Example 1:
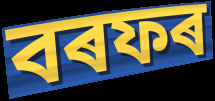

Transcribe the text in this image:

বৰফৰ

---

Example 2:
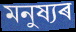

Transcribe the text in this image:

মনুষ্যৰ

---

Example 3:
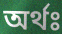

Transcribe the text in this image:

অৰ্থঃ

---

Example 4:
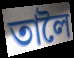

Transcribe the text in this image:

তালৈ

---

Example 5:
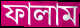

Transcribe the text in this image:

ফালাম